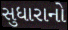
સુધારાનો